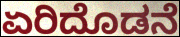
ಏರಿದೊಡನೆ